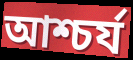
আশ্চর্য